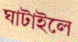
ঘাটাইলে